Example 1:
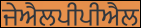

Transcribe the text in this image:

ਜੇਐਲਪੀਪੀਐਲ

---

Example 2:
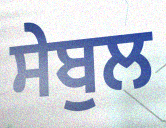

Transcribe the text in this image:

ਸੇਬੁਲ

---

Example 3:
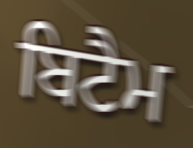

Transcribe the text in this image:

ਬਿਟੈਮ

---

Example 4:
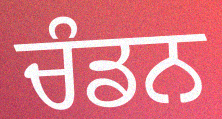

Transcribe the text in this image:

ਚੰਡਨ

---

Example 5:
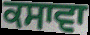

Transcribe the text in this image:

ਕਸਾਵਾ